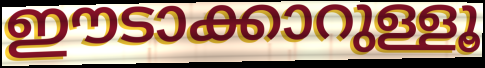
ഈടാക്കാറുള്ളൂ